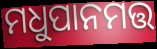
ମଧୁପାନମତ୍ତ